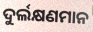
ଦୁର୍ଲକ୍ଷଣମାନ